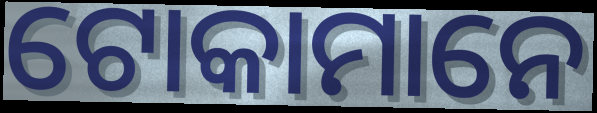
ଟୋକାମାନେ